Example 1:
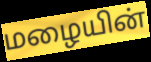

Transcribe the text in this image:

மழையின்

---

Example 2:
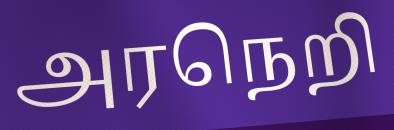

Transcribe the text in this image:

அரநெறி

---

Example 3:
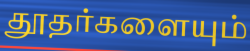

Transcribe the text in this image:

தூதர்களையும்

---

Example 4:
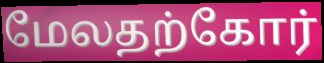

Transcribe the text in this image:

மேலதற்கோர்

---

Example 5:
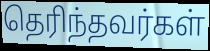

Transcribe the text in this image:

தெரிந்தவர்கள்